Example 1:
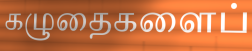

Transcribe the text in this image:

கழுதைகளைப்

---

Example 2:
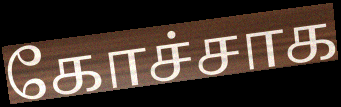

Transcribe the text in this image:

கோச்சாக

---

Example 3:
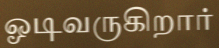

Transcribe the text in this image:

ஓடிவருகிறார்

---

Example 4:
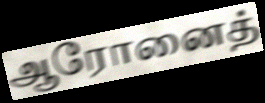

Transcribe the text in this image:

ஆரோனைத்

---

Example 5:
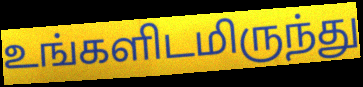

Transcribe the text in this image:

உங்களிடமிருந்து